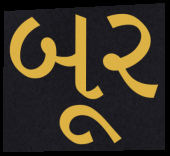
બૂર